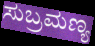
ಸುಬ್ರಮಣ್ಯ